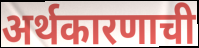
अर्थकारणाची